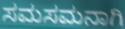
ಸಮಸಮನಾಗಿ